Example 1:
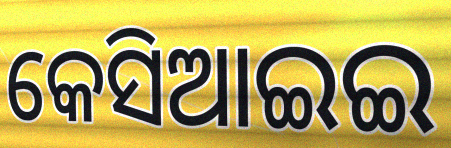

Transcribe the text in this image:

କେସିଆଇଇ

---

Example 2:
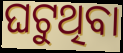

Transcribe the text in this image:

ଘଟୁଥିବା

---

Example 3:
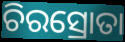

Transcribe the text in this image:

ଚିରସ୍ରୋତା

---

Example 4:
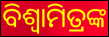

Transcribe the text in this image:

ବିଶ୍ଵାମିତ୍ରଙ୍କ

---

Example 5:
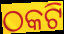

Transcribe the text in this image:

ଠକଟି